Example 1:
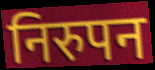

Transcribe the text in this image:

निरुपन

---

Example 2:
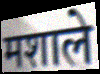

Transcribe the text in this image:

मशाले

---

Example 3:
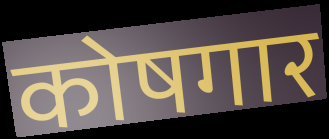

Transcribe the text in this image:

कोषगार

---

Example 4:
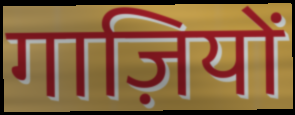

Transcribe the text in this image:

गाज़ियों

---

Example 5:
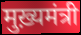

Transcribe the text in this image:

मुख़्यमंत्री